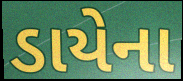
ડાયેના